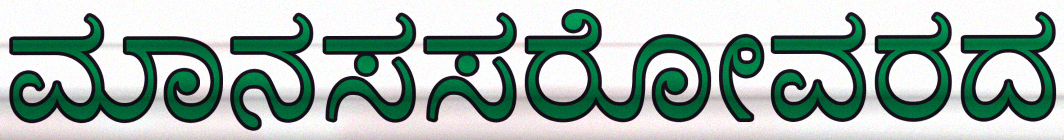
ಮಾನಸಸರೋವರದ